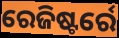
ରେଜିଷ୍ଟର୍ରେ